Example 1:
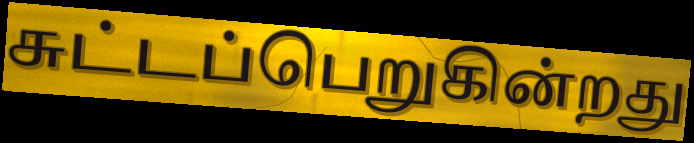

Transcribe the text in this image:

சுட்டப்பெறுகின்றது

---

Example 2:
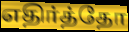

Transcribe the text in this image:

எதிர்த்தோ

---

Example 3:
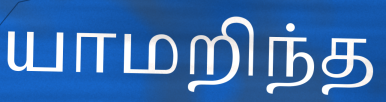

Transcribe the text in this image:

யாமறிந்த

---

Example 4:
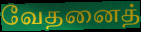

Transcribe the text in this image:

வேதனைத்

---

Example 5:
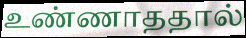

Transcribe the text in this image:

உண்ணாததால்